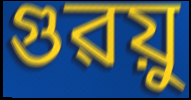
গুৱয়ু